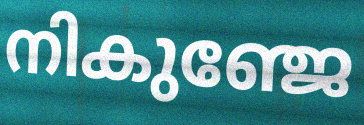
നികുഞ്ജേ